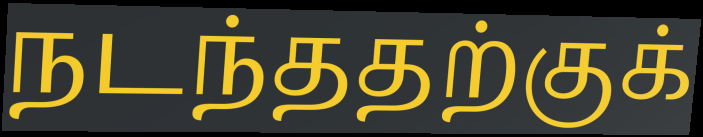
நடந்ததற்குக்